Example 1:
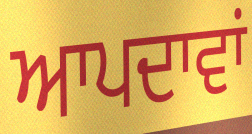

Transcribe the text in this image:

ਆਪਦਾਵਾਂ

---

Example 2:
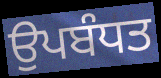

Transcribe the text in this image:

ਉਪਬੰਧਤ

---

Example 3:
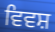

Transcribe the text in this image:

ਵਿਵਸ਼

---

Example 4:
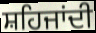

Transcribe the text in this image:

ਸ਼ਹਿਜਾਂਦੀ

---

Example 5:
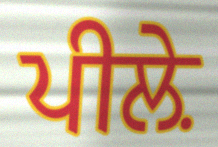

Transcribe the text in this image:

ਪੀਲ਼ੇ